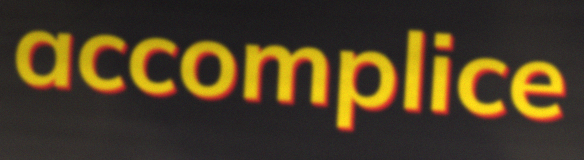
accomplice